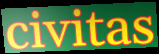
civitas